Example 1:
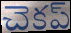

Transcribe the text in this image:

చెకప్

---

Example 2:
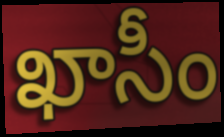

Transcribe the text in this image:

ఖాసీం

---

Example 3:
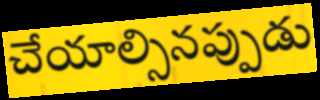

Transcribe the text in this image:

చేయాల్సినప్పుడు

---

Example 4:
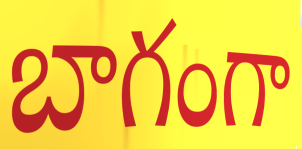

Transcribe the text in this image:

బాగంగా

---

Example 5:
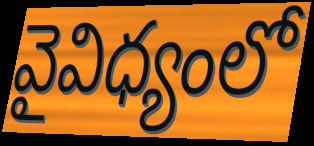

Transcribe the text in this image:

వైవిధ్యంలో